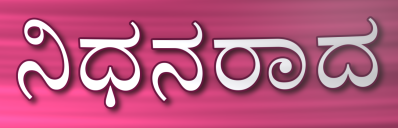
ನಿಧನರಾದ